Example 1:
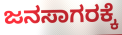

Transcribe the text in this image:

ಜನಸಾಗರಕ್ಕೆ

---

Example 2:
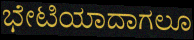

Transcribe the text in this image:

ಭೇಟಿಯಾದಾಗಲೂ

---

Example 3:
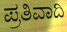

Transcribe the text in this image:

ಪ್ರತಿವಾದಿ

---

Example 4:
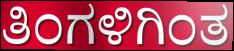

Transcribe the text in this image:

ತಿಂಗಳಿಗಿಂತ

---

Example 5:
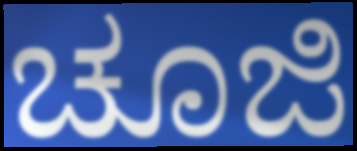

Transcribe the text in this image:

ಚೂಜಿ